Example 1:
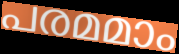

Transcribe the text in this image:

പരമമാം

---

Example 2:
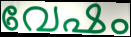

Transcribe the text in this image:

വേഷം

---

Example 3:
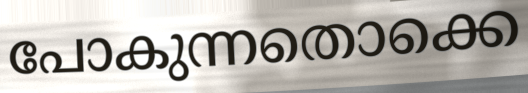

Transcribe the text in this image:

പോകുന്നതൊക്കെ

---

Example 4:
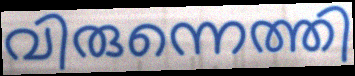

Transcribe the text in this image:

വിരുന്നെത്തി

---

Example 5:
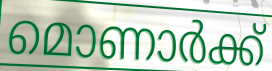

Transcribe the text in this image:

മൊണാർക്ക്